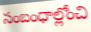
సంబంధాల్లోంచి